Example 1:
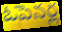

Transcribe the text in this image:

ఓపెనర్ల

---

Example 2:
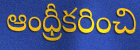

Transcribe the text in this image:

ఆంధ్రీకరించి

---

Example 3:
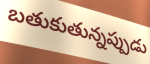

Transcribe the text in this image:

బతుకుతున్నప్పుడు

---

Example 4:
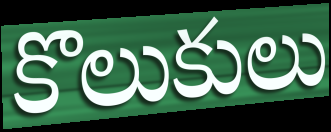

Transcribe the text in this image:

కొలుకులు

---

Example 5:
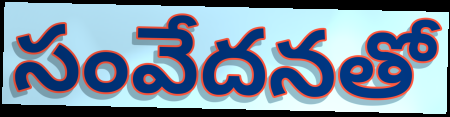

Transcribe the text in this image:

సంవేదనతో